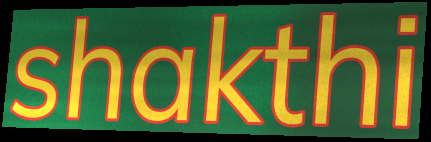
shakthi